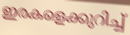
ഇരകളെക്കുറിച്ച്